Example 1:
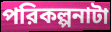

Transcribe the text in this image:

পরিকল্পনাটা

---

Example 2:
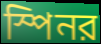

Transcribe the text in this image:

স্পিনর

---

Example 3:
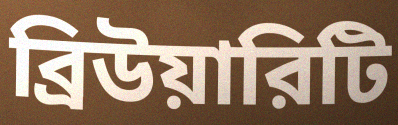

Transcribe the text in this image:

ব্রিউয়ারিটি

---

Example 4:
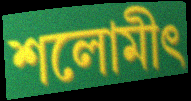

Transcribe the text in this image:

শলোমীৎ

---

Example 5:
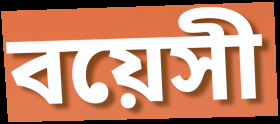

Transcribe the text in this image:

বয়েসী